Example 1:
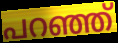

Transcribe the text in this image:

പറഞ്ഞ്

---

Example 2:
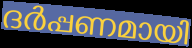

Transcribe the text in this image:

ദർപ്പണമായി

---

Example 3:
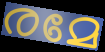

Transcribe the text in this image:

രമേ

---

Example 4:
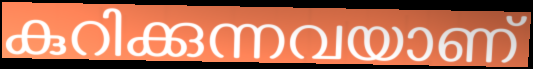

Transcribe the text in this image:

കുറിക്കുന്നവയാണ്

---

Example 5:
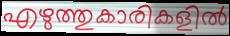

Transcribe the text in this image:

എഴുത്തുകാരികളിൽ